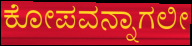
ಕೋಪವನ್ನಾಗಲೀ